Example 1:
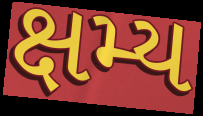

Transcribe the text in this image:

ક્ષમ્ય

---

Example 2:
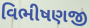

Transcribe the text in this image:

વિભીષણજી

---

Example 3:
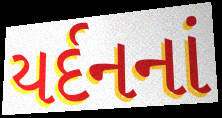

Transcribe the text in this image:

યર્દનનાં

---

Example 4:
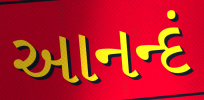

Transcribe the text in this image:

આનન્દં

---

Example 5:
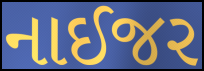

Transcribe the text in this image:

નાઈજર